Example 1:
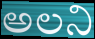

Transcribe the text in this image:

అలని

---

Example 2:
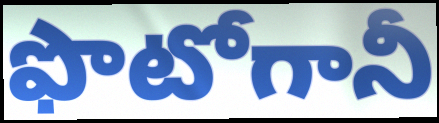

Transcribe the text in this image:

ఫొటోగానీ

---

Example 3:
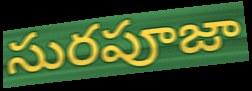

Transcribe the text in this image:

సురపూజా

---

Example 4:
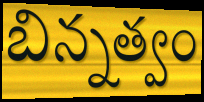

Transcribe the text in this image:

బిన్నత్వం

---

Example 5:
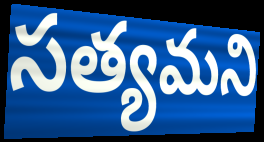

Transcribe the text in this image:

సత్యమని